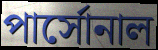
পার্সোনাল